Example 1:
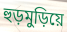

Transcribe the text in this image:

হুড়মুড়িয়ে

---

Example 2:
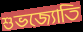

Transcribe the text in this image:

শুভজ্যোতি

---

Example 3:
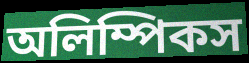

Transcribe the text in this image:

অলিম্পিকস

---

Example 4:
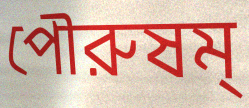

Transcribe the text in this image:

পৌরুষম্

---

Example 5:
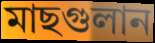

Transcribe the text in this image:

মাছগুলান